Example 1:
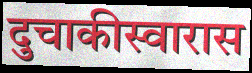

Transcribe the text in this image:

दुचाकीस्वारास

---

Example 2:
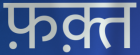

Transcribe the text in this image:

फ़क़्त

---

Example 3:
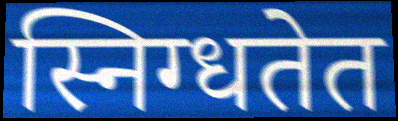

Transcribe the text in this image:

स्निग्धतेत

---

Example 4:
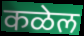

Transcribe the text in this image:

कळेल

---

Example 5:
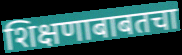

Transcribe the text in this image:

शिक्षणाबाबतचा